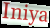
Iniya